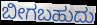
ಬೀಗಬಹುದು